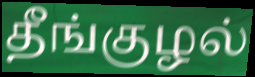
தீங்குழல்